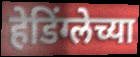
हेडिंग्लेच्या